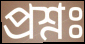
প্রশ্নঃ